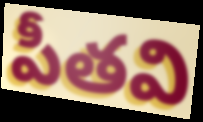
పీతవి